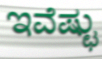
ಇವೆಷ್ಟು